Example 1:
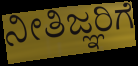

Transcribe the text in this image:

ನೀತಿಜ್ಞರಿಗೆ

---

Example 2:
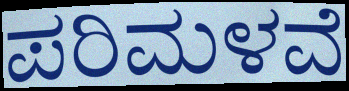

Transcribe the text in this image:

ಪರಿಮಳವೆ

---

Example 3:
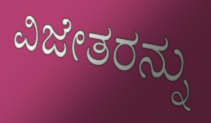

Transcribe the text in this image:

ವಿಜೇತರನ್ನು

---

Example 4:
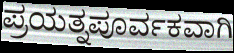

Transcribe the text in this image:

ಪ್ರಯತ್ನಪೂರ್ವಕವಾಗಿ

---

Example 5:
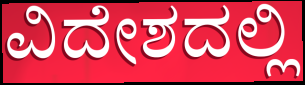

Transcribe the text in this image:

ವಿದೇಶದಲ್ಲಿ